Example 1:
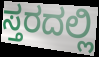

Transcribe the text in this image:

ಸ್ತರದಲ್ಲಿ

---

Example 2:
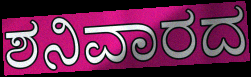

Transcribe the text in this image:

ಶನಿವಾರದ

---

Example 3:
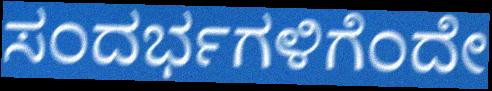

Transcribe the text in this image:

ಸಂದರ್ಭಗಳಿಗೆಂದೇ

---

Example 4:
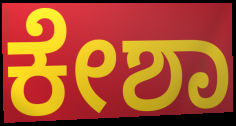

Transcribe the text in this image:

ಕೇಶಾ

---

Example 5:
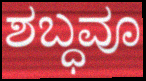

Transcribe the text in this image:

ಶಬ್ಧವೂ